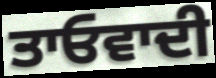
ਤਾਓਵਾਦੀ